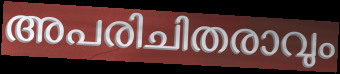
അപരിചിതരാവും